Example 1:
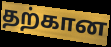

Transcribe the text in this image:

தற்கான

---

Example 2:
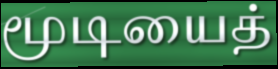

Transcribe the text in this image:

மூடியைத்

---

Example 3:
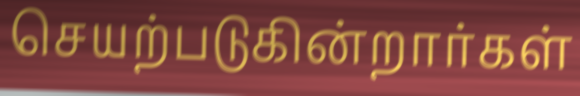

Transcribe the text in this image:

செயற்படுகின்றார்கள்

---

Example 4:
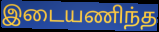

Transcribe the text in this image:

இடையணிந்த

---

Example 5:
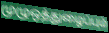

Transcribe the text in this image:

முழுஒத்துழைப்பும்